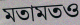
মতামতও